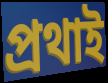
প্ৰথাই